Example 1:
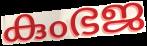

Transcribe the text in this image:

കുംഭജ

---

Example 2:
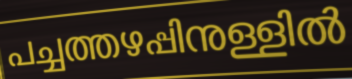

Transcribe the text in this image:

പച്ചത്തഴപ്പിനുള്ളിൽ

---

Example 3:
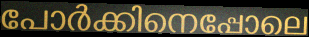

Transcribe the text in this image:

പോർക്കിനെപ്പോലെ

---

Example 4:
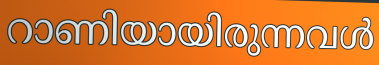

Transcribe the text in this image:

റാണിയായിരുന്നവൾ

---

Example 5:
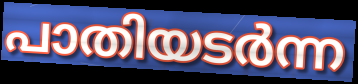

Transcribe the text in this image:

പാതിയടർന്ന